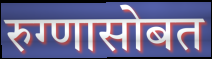
रुग्णासोबत